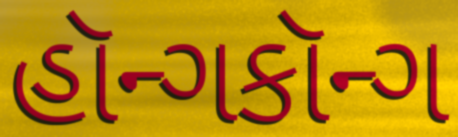
હૉન્ગકૉન્ગ